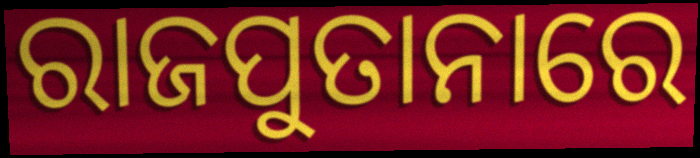
ରାଜପୁତାନାରେ